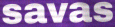
savas